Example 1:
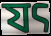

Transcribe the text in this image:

যৎ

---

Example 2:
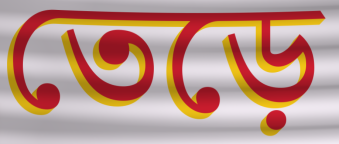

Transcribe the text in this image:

তেড়ে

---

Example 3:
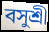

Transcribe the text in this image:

বসুশ্রী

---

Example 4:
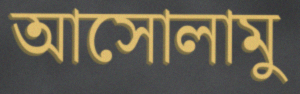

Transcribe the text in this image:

আসোলামু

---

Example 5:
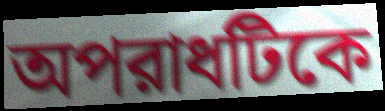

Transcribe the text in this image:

অপরাধটিকে